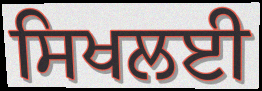
ਸਿਖਲਈ